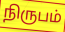
நிருபம்